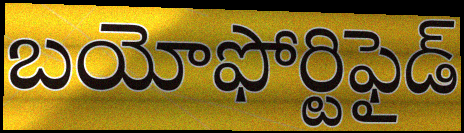
బయోఫోర్టిఫైడ్